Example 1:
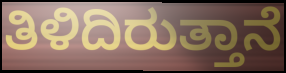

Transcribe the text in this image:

ತಿಳಿದಿರುತ್ತಾನೆ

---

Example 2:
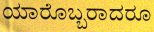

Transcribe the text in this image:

ಯಾರೊಬ್ಬರಾದರೂ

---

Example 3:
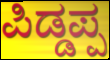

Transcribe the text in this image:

ಪಿಡ್ಡಪ್ಪ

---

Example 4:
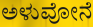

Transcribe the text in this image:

ಅಳುವೋನೆ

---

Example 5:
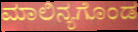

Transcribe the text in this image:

ಮಾಲಿನ್ಯಗೊಂಡ